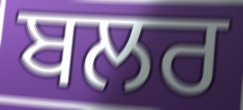
ਬਲਰ